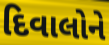
દિવાલોને